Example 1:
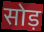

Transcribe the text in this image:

सोड़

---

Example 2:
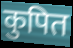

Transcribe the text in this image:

कुपित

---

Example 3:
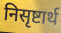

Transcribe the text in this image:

निसृष्टार्थ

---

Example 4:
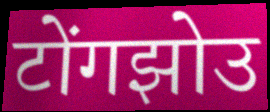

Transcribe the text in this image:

टोंगझोउ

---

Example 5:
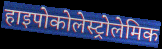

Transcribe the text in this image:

हाइपोकोलेस्ट्रोलेमिक